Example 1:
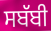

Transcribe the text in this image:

ਸਬੱਬੀ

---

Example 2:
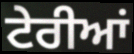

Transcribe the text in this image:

ਟੇਰੀਆਂ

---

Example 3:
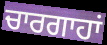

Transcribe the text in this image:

ਚਾਰਗਾਹਾਂ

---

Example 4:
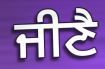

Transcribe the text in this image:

ਜੀਣੈ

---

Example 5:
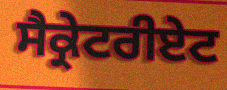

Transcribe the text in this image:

ਸੈਕ੍ਰੇਟਰੀਏਟ